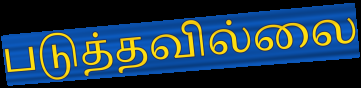
படுத்தவில்லை